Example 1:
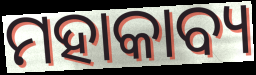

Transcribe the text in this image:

ମହାକାବ୍ୟ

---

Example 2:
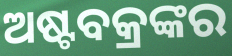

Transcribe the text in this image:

ଅଷ୍ଟବକ୍ରଙ୍କର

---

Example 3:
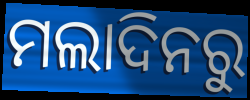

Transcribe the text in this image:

ମଲାଦିନରୁ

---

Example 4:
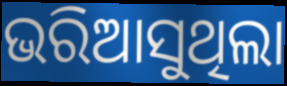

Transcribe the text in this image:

ଭରିଆସୁଥିଲା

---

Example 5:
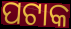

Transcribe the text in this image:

ପଟାକ